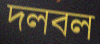
দলবল